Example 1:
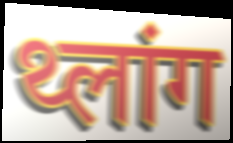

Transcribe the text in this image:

थ्लांग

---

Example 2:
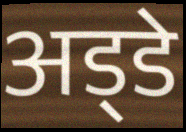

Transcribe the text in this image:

अड्‍डे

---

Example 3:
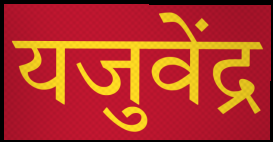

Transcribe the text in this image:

यजुवेंद्र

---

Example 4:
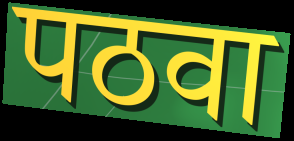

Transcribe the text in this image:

पठवा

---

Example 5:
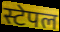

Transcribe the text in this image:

स्टेपल